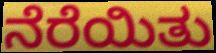
ನೆರೆಯಿತು